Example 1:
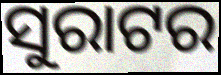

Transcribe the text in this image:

ସୁରାଟର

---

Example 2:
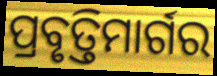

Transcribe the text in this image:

ପ୍ରବୃତ୍ତିମାର୍ଗର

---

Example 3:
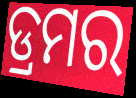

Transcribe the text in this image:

ଡ୍ରମର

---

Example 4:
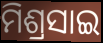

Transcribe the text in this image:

ମିଶ୍ରସାଇ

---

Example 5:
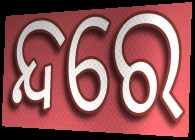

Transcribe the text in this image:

ନ୍ଦରେ